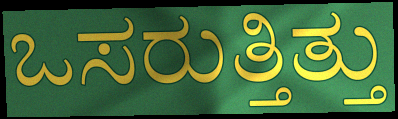
ಒಸರುತ್ತಿತ್ತು